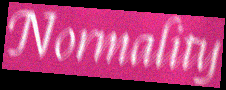
Normality